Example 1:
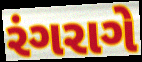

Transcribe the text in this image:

રંગરાગે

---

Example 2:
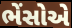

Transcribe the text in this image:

ભેંસોએ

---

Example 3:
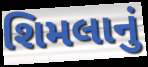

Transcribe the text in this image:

શિમલાનું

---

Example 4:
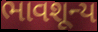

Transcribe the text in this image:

ભાવશૂન્ય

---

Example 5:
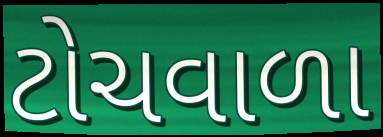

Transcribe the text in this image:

ટોચવાળા